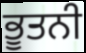
ਭੂਤਨੀ